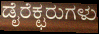
ಡೈರೆಕ್ಟರುಗಳು